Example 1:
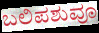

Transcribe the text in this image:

ಬಲಿಪಶುವೂ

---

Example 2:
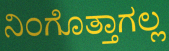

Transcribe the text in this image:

ನಿಂಗೊತ್ತಾಗಲ್ಲ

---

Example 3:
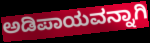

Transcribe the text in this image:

ಅಡಿಪಾಯವನ್ನಾಗಿ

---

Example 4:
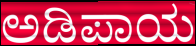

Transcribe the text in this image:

ಅಡಿಪಾಯ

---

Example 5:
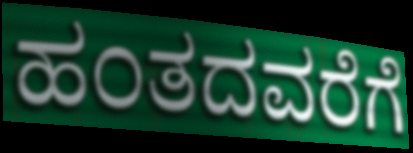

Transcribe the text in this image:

ಹಂತದವರೆಗೆ